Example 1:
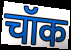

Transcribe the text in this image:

चॉक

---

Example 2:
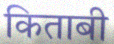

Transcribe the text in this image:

किताबी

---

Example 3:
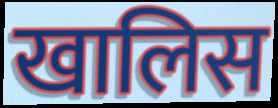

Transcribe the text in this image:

खालिस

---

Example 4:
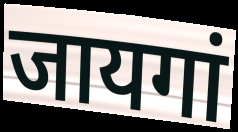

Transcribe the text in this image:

जायगां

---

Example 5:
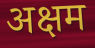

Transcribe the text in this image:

अक्षम